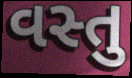
વસ્તુ